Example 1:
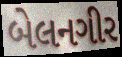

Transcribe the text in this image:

બેલનગીર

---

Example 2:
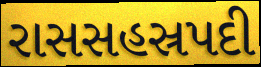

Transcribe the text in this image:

રાસસહસ્રપદી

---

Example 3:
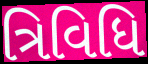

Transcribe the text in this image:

ત્રિવિધિ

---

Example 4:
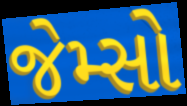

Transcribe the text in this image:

જેમ્સો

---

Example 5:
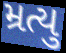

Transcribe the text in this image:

મ્રત્યુ